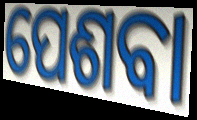
ପେଶବା